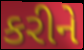
કરીને